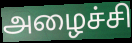
அழைச்சி